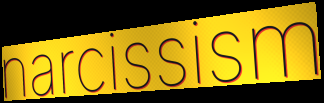
narcissism